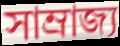
সাম্রাজ্য